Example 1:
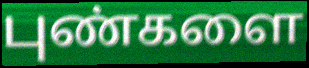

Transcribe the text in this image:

புண்களை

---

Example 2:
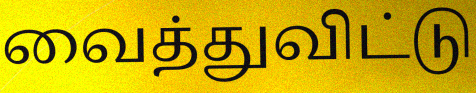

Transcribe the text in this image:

வைத்துவிட்டு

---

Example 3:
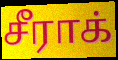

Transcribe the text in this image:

சீராக்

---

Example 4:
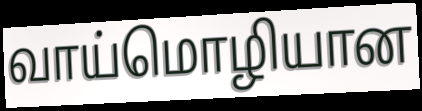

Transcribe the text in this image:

வாய்மொழியான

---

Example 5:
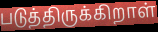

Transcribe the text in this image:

படுத்திருக்கிறாள்